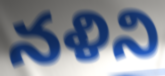
నళిని